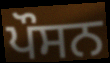
ਪੌਸਨ